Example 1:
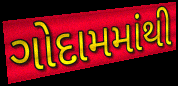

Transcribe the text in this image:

ગોદામમાંથી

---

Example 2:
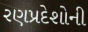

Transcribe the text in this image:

રણપ્રદેશોની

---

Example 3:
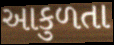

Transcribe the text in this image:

આકુળતા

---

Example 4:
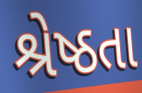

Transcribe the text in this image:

શ્રેષ્ઠતા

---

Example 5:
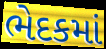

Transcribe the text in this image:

ભેદકમાં